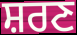
ਸ਼ਰਣ